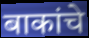
बाकांचे